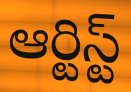
ఆర్టిస్ట్